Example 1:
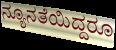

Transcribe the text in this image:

ನ್ಯೂನತೆಯಿದ್ದರೂ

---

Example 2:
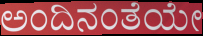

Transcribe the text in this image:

ಅಂದಿನಂತೆಯೇ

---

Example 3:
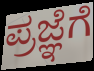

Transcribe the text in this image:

ಪ್ರಜ್ಞೆಗೆ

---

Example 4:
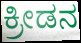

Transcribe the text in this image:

ಕ್ರೀಡನ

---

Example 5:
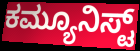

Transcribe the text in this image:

ಕಮ್ಯೂನಿಸ್ಟ್